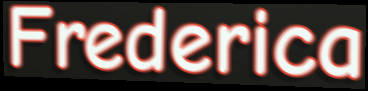
Frederica